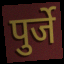
पुर्जे